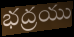
భద్రయు